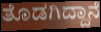
ತೊಡಗಿದ್ದಾನೆ